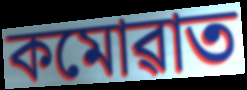
কমোৱাত